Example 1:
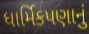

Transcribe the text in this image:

ધાર્મિકપણાનું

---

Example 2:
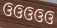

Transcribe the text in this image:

ઉઉઉઉઉ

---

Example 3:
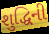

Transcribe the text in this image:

શુદ્ધિની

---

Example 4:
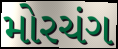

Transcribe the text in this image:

મોરચંગ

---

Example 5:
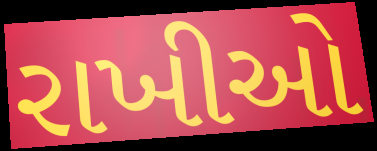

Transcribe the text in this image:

રાખીઓ